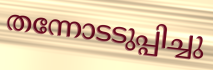
തന്നോടടുപ്പിച്ചു